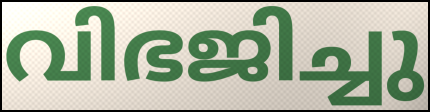
വിഭജിച്ചു